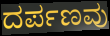
ದರ್ಪಣವು